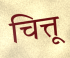
चित्तू